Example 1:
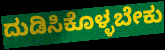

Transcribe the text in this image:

ದುಡಿಸಿಕೊಳ್ಳಬೇಕು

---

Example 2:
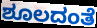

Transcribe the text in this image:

ಶೂಲದಂತೆ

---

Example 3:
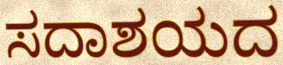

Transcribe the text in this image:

ಸದಾಶಯದ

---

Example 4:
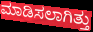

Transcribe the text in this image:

ಮಾಡಿಸಲಾಗಿತ್ತು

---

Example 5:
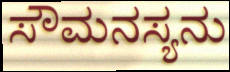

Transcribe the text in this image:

ಸೌಮನಸ್ಯನು